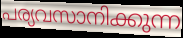
പര്യവസാനിക്കുന്ന